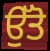
ਉੱਤੋ